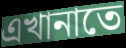
এখানাতে